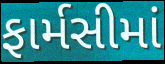
ફાર્મસીમાં